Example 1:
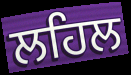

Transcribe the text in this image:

ਲਹਿਲ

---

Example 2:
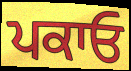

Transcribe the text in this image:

ਪਕਾਓ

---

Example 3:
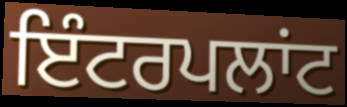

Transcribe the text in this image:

ਇੰਟਰਪਲਾਂਟ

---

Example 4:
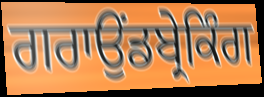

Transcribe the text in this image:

ਗਰਾਉਂਡਬ੍ਰੇਕਿੰਗ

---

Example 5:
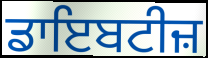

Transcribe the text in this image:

ਡਾਇਬਟੀਜ਼